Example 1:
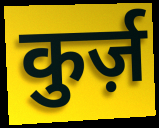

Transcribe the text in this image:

कुर्ज़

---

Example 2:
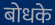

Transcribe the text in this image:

बोधके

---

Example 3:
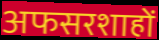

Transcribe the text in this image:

अफसरशाहों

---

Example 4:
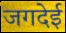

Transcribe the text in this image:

जगदेई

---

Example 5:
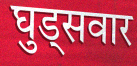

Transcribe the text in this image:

घुड्सवार